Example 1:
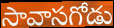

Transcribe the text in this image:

సావాసగోడు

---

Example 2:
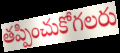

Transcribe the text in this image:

తప్పించుకోగలరు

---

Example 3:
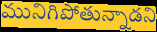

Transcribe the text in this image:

మునిగిపోతున్నాడని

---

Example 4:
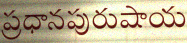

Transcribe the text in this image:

ప్రధానపురుషాయ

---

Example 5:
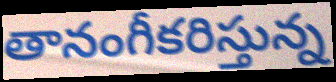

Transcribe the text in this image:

తానంగీకరిస్తున్న